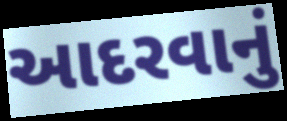
આદરવાનું